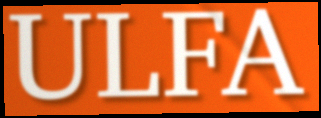
ULFA